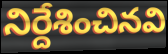
నిర్దేశించినవి